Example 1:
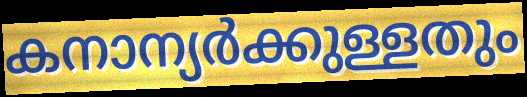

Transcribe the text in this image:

കനാന്യർക്കുള്ളതും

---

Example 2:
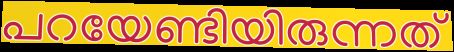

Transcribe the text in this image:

പറയേണ്ടിയിരുന്നത്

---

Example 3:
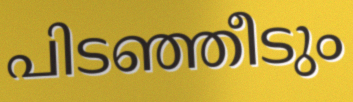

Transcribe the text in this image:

പിടഞ്ഞീടും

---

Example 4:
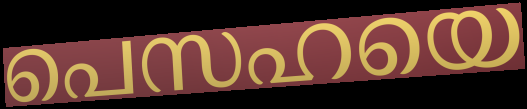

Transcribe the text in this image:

പെസഹയെ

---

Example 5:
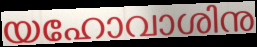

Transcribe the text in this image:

യഹോവാശിനു